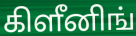
கிளீனிங்